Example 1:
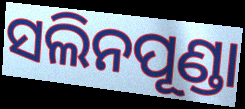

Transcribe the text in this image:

ସଲିନପୂଣ୍ଡା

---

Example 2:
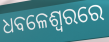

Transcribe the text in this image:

ଧବଳେଶ୍ଵରରେ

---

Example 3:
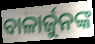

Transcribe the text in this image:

ବାଳାର୍ଜୁନଙ୍କ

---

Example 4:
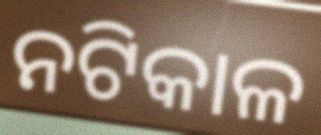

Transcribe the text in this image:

ନଟିକାଳ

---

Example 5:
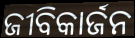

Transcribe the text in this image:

ଜୀବିକାର୍ଜନ